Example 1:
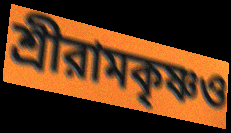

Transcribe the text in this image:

শ্রীরামকৃষ্ণও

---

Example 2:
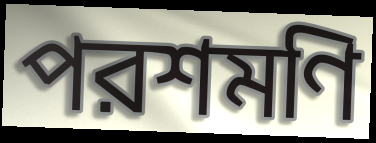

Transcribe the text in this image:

পরশমণি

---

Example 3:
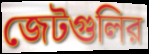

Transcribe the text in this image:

জেটগুলির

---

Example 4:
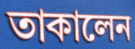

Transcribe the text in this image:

তাকালেন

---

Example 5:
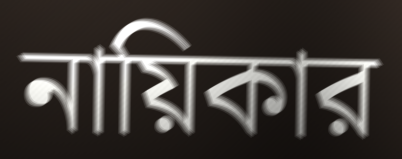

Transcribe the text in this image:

নায়িকার